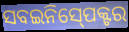
ସବଇନିସ୍‍ପେକ୍ଟର